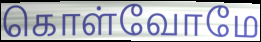
கொள்வோமே